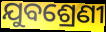
ଯୁବଶ୍ରେଣୀ